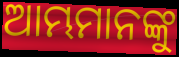
ଆମ୍ଭମାନଙ୍କୁ